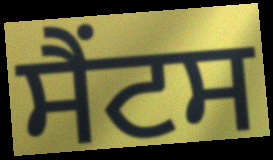
ਸੈਂਟਸ